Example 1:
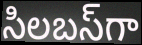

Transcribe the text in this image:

సిలబస్‌గా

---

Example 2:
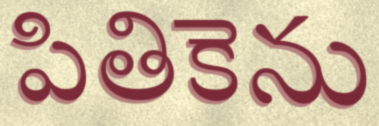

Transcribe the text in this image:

పితికెను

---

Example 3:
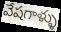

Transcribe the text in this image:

వేషగాళ్ళు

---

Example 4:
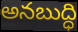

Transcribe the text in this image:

అనబుద్ధి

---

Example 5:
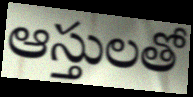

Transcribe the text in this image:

ఆస్తులతో